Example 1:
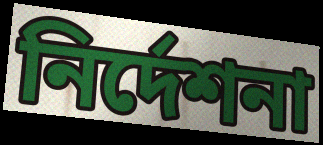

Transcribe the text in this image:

নিৰ্দেশনা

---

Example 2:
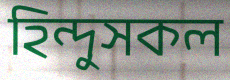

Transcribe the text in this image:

হিন্দুসকল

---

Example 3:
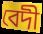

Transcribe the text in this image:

বেদী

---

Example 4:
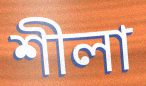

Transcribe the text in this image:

শীলা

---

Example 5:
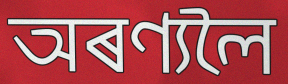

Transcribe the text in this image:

অৰণ্যলৈ